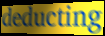
deducting